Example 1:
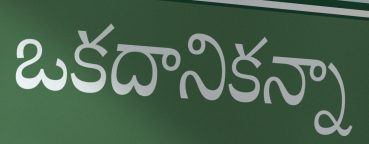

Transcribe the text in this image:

ఒకదానికన్నా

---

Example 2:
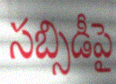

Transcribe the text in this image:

సబ్సిడీపై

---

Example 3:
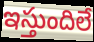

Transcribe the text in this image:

ఇస్తుందిలే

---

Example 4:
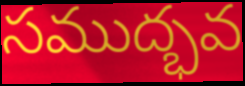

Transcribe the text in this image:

సముద్భవ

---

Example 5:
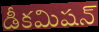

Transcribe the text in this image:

డీకమిషన్